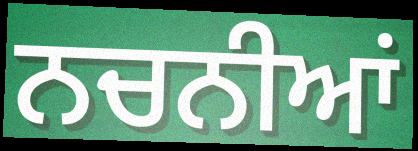
ਨਚਨੀਆਂ